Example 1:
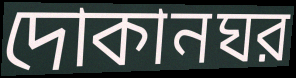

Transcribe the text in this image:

দোকানঘর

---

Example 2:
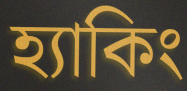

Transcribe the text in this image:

হ্যাকিং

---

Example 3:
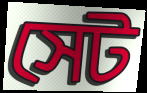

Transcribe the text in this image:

সেট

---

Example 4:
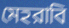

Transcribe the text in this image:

মেহরাবি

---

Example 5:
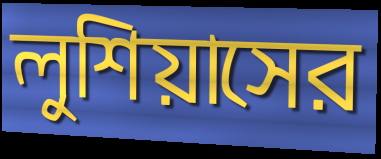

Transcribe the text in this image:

লুশিয়াসের